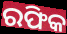
ରଫିକ